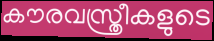
കൗരവസ്ത്രീകളുടെ